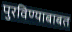
पुरविण्याबाबत